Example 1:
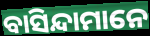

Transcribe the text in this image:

ବାସିନ୍ଦାମାନେ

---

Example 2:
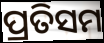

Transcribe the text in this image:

ପ୍ରତିସମ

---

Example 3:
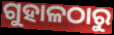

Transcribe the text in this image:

ଗୁହାଳଠାରୁ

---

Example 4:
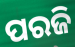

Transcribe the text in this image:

ପରଜି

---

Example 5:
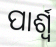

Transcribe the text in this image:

ପାର୍ଶ୍ବ